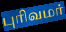
புரிவமர்